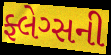
ફ્લેગ્સની